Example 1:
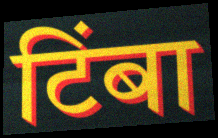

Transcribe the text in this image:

टिंबा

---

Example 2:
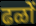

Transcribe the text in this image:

ढळों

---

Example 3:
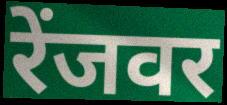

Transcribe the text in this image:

रेंजवर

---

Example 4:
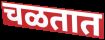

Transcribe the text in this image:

चळतात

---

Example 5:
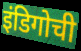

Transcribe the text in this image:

इंडिगोची